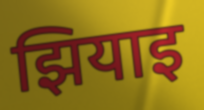
झियाइ